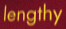
lengthy